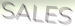
SALES